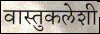
वास्तुकलेशी